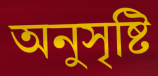
অনুসৃষ্টি